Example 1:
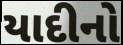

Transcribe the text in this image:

યાદીનો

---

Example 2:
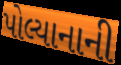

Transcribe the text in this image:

પોલ્યાનાની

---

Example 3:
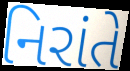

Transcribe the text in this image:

નિરાંતે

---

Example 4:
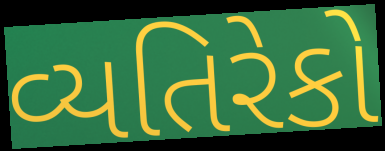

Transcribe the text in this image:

વ્યતિરેકો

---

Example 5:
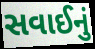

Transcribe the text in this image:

સવાઈનું